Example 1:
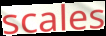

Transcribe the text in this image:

scales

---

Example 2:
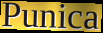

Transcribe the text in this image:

Punica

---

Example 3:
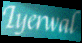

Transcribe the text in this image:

Iyerwal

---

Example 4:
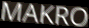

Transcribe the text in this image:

MAKRO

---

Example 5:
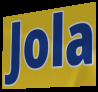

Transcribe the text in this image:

Jola